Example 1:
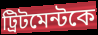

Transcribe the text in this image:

ট্রিটমেন্টকে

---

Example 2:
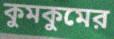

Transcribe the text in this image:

কুমকুমের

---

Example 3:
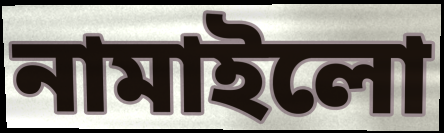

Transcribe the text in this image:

নামাইলো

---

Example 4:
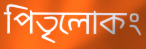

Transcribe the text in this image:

পিতৃলোকং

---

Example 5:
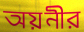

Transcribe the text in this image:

অয়নীর